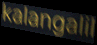
kalangalil